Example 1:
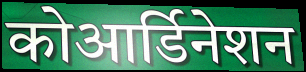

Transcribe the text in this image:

कोआर्डिनेशन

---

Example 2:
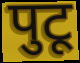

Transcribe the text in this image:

पुटू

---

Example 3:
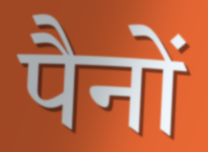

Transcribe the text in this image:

पैनों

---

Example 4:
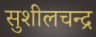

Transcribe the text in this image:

सुशीलचन्द्र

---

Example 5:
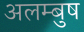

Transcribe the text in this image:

अलम्बुष